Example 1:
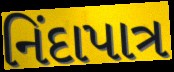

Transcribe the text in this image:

નિંદાપાત્ર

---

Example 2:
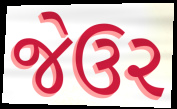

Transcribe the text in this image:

જેઉર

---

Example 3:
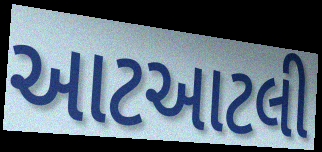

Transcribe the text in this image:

આટઆટલી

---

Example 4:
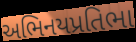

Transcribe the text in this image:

અભિનયપ્રતિભા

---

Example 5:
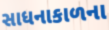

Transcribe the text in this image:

સાધનાકાળના